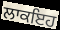
ਲਾਕਇਹ